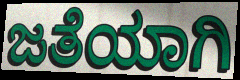
ಜತೆಯಾಗಿ